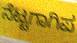
ನೆಟ್ಟಗಾಗಿಪ